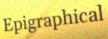
Epigraphical